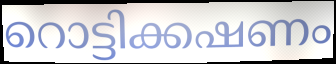
റൊട്ടിക്കഷണം